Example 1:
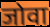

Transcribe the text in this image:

जोवा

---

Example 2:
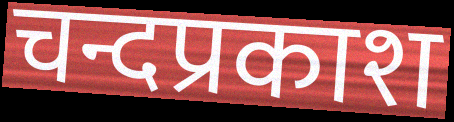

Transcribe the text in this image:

चन्दप्रकाश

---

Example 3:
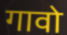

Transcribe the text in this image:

गावो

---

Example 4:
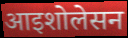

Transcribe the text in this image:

आइशोलेसन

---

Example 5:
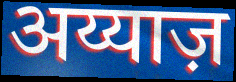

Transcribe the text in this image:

अय्याज़